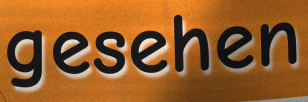
gesehen